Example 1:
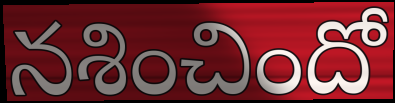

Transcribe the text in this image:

నశించిందో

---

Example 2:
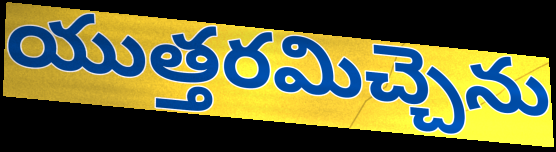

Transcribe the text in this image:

యుత్తరమిచ్చెను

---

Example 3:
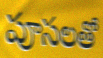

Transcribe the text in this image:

పూసలతో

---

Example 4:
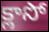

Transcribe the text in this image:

క్లాసో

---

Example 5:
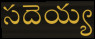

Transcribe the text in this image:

సదెయ్య